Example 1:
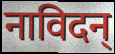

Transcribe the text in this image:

नाविदन्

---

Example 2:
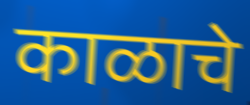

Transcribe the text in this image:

काळाचे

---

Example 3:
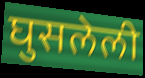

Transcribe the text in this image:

घुसलेली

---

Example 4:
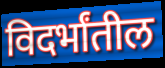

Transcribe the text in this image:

विदर्भांतील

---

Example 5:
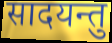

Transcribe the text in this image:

सादयन्तु